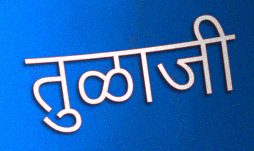
तुळाजी